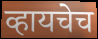
व्हायचेच